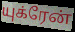
யுக்ரேன்